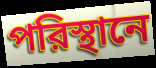
পরিস্থানে